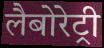
लैबोरेट्री